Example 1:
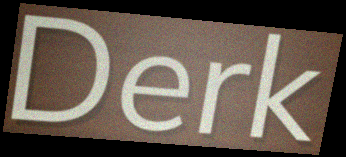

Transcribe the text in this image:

Derk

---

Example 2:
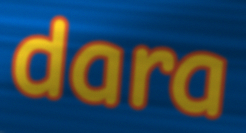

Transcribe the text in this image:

dara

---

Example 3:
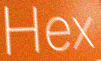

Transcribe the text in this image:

Hex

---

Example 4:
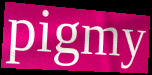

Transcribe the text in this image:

pigmy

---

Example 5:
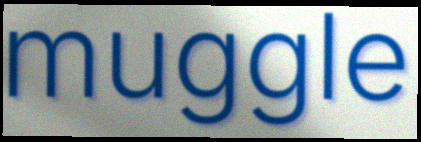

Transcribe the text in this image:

muggle